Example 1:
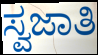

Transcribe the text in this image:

ಸ್ವಜಾತಿ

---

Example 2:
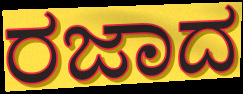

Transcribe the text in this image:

ರಜಾದ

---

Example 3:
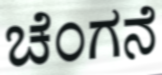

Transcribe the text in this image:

ಚೆಂಗನೆ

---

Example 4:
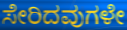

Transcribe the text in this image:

ಸೇರಿದವುಗಳೇ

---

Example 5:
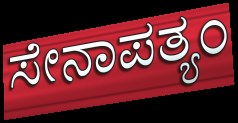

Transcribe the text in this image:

ಸೇನಾಪತ್ಯಂ